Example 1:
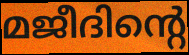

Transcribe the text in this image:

മജീദിന്റെ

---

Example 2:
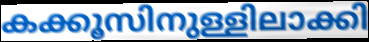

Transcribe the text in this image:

കക്കൂസിനുള്ളിലാക്കി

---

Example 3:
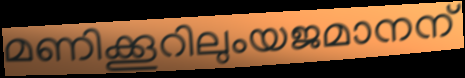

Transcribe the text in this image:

മണിക്കൂറിലുംയജമാനന്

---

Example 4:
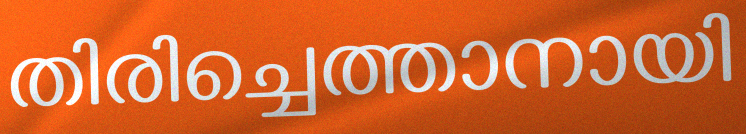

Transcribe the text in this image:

തിരിച്ചെത്താനായി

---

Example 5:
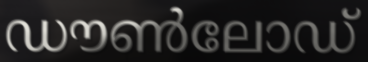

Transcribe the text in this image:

ഡൗൺലോഡ്